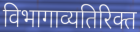
विभागाव्यतिरिक्त